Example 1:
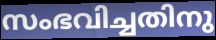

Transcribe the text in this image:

സംഭവിച്ചതിനു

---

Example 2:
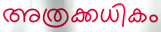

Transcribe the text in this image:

അത്രക്കധികം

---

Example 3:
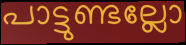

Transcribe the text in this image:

പാട്ടുണ്ടല്ലോ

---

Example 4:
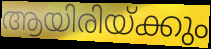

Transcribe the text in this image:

ആയിരിയ്ക്കും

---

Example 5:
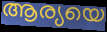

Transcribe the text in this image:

ആര്യയെ